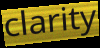
clarity